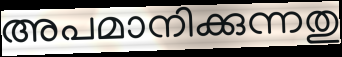
അപമാനിക്കുന്നതു